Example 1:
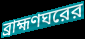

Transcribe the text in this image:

ব্রাহ্মণঘরের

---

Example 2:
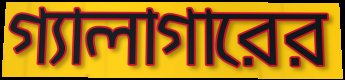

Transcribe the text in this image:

গ্যালাগারের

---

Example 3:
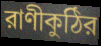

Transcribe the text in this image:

রাণীকুঠির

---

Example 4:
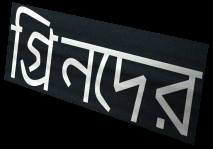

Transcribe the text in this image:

গ্রিনদের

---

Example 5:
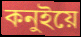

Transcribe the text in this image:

কনুইয়ে